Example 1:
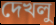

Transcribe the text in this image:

দেখলু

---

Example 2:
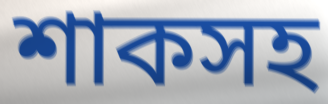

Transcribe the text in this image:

শাকসহ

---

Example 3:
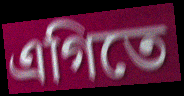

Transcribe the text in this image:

এগিতে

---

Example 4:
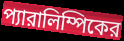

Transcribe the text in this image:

প্যারালিম্পিকের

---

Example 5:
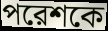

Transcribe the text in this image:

পরেশকে